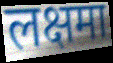
लक्षमा